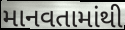
માનવતામાંથી